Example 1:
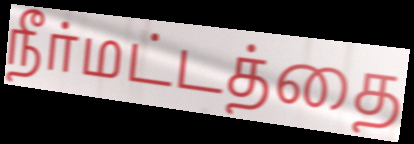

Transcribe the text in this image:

நீர்மட்டத்தை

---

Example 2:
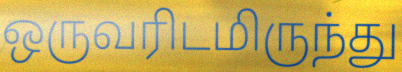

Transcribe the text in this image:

ஒருவரிடமிருந்து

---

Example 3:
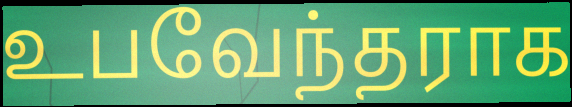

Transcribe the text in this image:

உபவேந்தராக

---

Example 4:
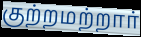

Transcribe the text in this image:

குற்றமற்றார்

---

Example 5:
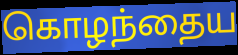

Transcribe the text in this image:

கொழந்தைய